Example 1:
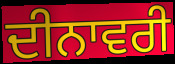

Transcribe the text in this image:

ਦੀਨਾਵਰੀ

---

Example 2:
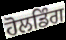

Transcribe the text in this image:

ਹੋਲਡਿੰਗ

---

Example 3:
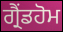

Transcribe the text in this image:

ਗ੍ਰੈਂਡਹੋਮ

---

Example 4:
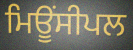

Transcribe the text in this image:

ਮਿਊਂਸੀਪਲ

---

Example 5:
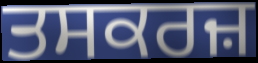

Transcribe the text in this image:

ਤਸਕਰਜ਼